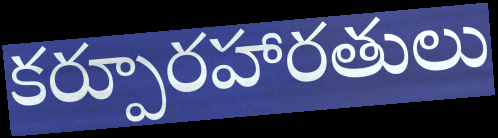
కర్పూరహారతులు